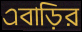
এবাড়ির